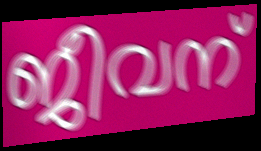
ജീവന്